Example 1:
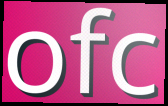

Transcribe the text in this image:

ofc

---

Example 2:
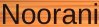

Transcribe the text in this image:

Noorani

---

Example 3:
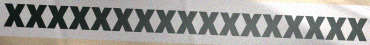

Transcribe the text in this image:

xxxxxxxxxxxxxxxxx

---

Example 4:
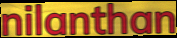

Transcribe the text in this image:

nilanthan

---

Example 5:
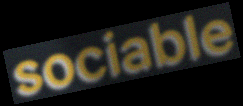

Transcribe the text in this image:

sociable